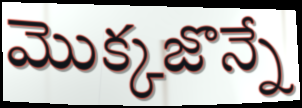
మొక్కజొన్నే